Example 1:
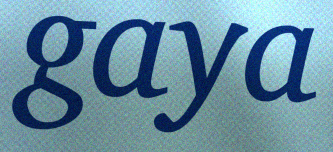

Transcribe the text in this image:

gaya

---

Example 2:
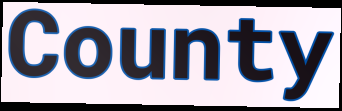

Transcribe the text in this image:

County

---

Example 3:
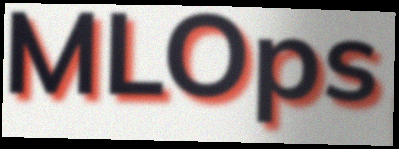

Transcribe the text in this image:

MLOps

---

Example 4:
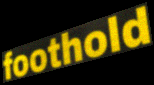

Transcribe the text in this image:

foothold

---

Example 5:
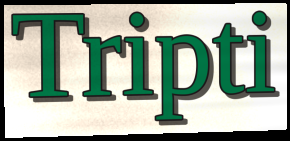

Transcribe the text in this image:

Tripti